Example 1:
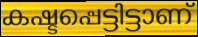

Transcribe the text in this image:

കഷ്ടപ്പെട്ടിട്ടാണ്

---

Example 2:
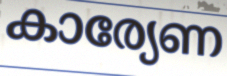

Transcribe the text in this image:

കാര്യേണ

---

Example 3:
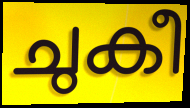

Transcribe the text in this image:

ചുകീ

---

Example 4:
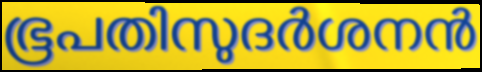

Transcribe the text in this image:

ഭൂപതിസുദർശനൻ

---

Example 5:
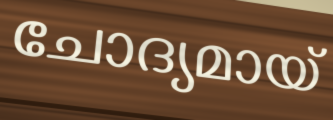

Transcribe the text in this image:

ചോദ്യമായ്